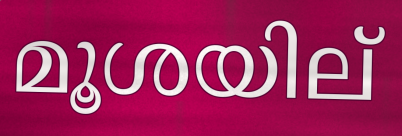
മൂശയില്